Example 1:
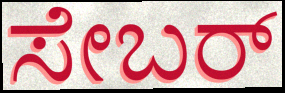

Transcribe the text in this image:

ಸೇಬರ್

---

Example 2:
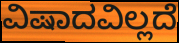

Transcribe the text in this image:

ವಿಷಾದವಿಲ್ಲದೆ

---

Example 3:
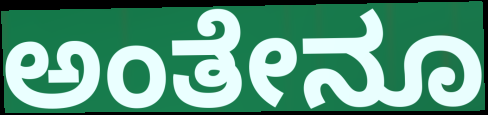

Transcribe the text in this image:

ಅಂತೇನೂ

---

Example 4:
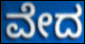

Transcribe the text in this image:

ವೇದ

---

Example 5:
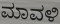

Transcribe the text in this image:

ಮಾವಳಿ